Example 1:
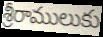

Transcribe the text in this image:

శ్రీరాములుకు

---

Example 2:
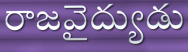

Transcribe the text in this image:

రాజవైద్యుడు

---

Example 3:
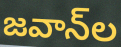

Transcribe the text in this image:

జవాన్‌ల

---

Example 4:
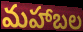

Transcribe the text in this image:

మహాబల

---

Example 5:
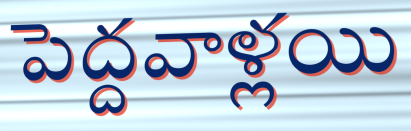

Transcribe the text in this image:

పెద్దవాళ్లయి